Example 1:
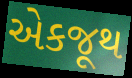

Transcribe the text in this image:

એકજૂથ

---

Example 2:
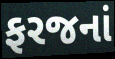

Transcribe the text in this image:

ફરજનાં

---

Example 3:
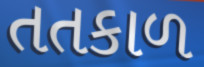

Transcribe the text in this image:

તતકાળ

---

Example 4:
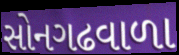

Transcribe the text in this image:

સોનગઢવાળા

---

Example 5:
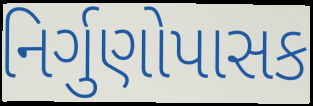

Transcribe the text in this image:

નિર્ગુણોપાસક